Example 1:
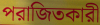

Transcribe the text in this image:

পরাজিতকারী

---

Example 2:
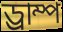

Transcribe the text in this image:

ড্রাম্প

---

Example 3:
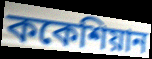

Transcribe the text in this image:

ককেশিয়ান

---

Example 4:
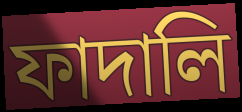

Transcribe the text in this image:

ফাদালি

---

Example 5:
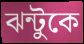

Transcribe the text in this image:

ঝন্টুকে